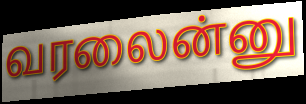
வரலைன்னு